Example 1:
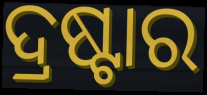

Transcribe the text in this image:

ଦ୍ରଷ୍ଟାର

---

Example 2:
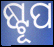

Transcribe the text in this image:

ଷ୍ଟୂପ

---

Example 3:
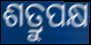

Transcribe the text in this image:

ଶତ୍ରୁପକ୍ଷ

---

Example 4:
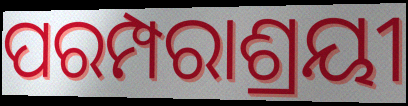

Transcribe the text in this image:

ପରମ୍ପରାଶ୍ରୟୀ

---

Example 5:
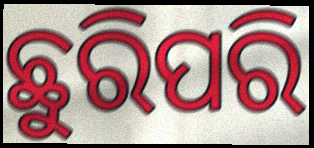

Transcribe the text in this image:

ଛୁରିପରି